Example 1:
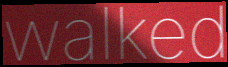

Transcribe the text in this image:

walked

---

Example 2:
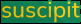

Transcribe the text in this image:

suscipit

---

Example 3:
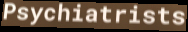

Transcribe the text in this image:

Psychiatrists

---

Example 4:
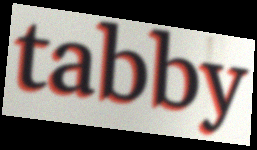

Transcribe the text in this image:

tabby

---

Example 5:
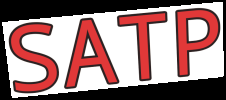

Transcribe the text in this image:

SATP